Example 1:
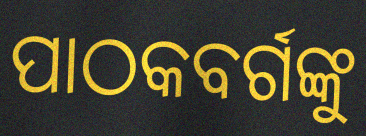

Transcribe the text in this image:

ପାଠକବର୍ଗଙ୍କୁ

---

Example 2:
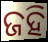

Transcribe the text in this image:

ଜହି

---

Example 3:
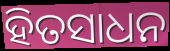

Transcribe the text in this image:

ହିତସାଧନ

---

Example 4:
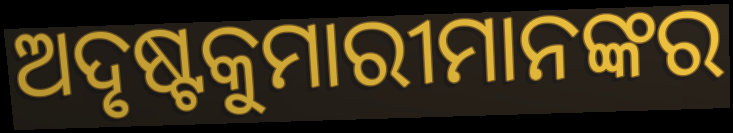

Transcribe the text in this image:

ଅଦୃଷ୍ଟକୁମାରୀମାନଙ୍କର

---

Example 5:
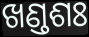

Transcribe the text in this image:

ଖଣ୍ଡଶଃ